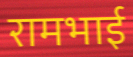
रामभाई